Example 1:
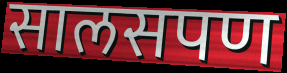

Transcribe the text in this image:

सालसपण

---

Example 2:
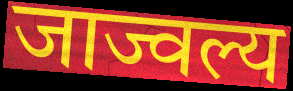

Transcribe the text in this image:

जाज्वल्य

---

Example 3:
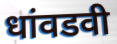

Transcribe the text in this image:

धांवडवी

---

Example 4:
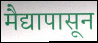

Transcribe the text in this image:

मैद्यापासून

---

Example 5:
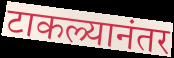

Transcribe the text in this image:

टाकल्यानंतर